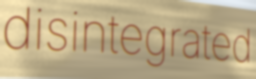
disintegrated